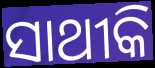
ସାଥୀକି